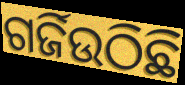
ଗର୍ଜିଉଠିଛି